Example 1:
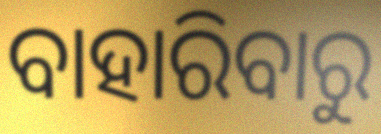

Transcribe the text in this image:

ବାହାରିବାରୁ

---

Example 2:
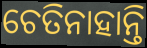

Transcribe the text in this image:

ଚେତିନାହାନ୍ତି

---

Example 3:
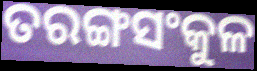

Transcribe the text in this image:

ତରଙ୍ଗସଂକୁଳ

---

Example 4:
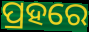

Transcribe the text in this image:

ପ୍ରହରେ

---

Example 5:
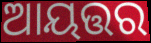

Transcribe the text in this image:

ଆୟତ୍ତର